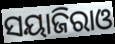
ସୟାଜିରାଓ